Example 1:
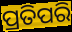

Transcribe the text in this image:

ପ୍ରତିପରି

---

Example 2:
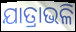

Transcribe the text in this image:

ଯାତ୍ରାଭଳି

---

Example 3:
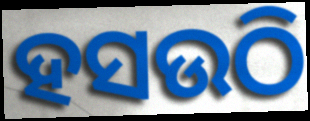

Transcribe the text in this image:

ହସଉଠି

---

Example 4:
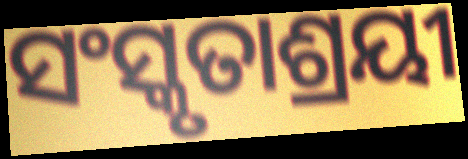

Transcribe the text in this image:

ସଂସ୍କୃତାଶ୍ରୟୀ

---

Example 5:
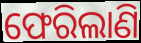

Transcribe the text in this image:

ଫେରିଲାଣି